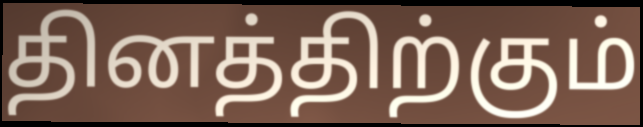
தினத்திற்கும்